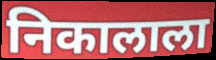
निकालाला